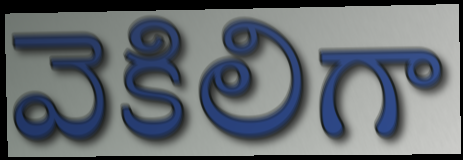
వెకిలిగా